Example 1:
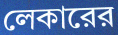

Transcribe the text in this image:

লেকারের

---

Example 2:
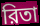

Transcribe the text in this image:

রিতা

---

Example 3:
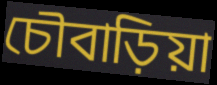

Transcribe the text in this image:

চৌবাড়িয়া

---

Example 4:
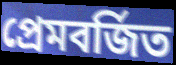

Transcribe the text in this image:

প্রেমবর্জিত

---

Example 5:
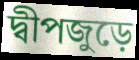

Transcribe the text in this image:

দ্বীপজুড়ে